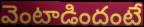
వెంటాడిందంటే